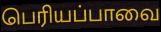
பெரியப்பாவை